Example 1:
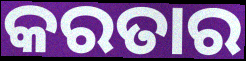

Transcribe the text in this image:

କରତାର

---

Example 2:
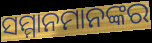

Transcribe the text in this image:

ସମ୍ମାନମାନଙ୍କର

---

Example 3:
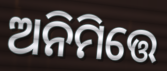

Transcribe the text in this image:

ଅନିମିତ୍ତେ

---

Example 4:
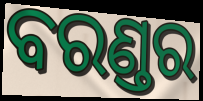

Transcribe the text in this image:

ବରଣ୍ଡର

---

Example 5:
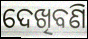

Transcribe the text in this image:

ଦେଖିବଣି